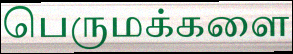
பெருமக்களை